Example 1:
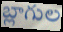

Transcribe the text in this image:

బ్లాగుల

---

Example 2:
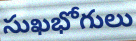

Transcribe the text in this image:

సుఖభోగులు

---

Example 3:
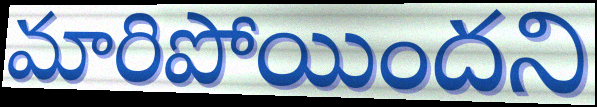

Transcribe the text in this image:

మారిపోయిందని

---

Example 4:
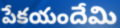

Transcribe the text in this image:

పేకయందేమి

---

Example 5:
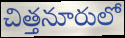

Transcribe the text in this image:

చిత్తనూరులో